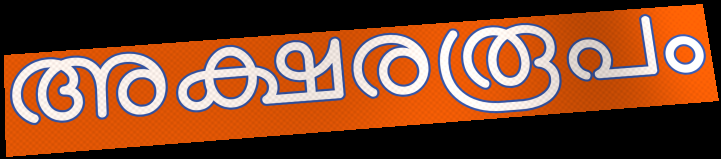
അക്ഷരരൂപം